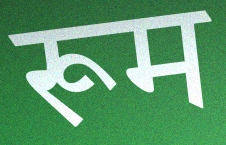
रूम